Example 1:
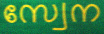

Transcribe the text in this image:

സ്വേന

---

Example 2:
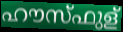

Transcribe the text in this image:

ഹൗസ്ഫുള്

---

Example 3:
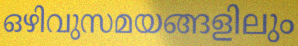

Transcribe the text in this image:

ഒഴിവുസമയങ്ങളിലും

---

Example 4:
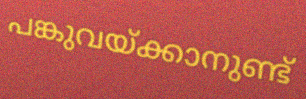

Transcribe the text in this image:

പങ്കുവയ്ക്കാനുണ്ട്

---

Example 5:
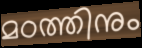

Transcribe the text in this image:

മഠത്തിനും